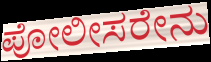
ಪೋಲೀಸರೇನು